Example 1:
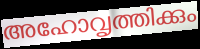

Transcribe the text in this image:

അഹോവൃത്തിക്കും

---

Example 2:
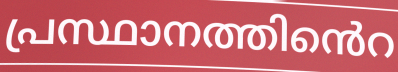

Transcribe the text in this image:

പ്രസ്ഥാനത്തിൻെറ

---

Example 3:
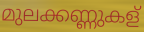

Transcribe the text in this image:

മുലക്കണ്ണുകള്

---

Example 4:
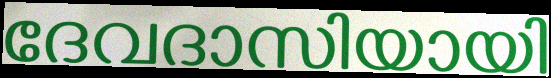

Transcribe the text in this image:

ദേവദാസിയായി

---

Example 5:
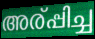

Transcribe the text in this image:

അര്പ്പിച്ച